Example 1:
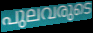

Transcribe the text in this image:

പുലവരുടെ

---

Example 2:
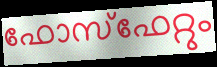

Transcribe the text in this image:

ഫോസ്ഫേറ്റും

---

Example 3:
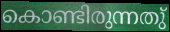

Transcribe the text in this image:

കൊണ്ടിരുന്നതു്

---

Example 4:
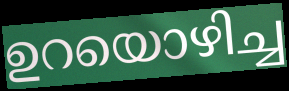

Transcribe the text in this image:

ഉറയൊഴിച്ച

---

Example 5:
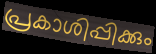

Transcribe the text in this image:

പ്രകാശിപ്പിക്കും